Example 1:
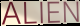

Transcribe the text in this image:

ALIEN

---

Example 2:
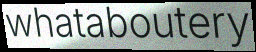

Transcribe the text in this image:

whataboutery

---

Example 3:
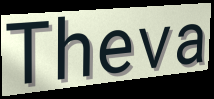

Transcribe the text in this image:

Theva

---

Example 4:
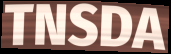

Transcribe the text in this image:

TNSDA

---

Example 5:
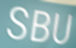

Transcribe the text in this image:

SBU